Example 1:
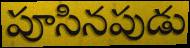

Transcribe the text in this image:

పూసినపుడు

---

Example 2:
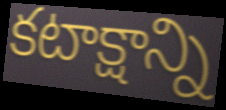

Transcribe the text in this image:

కటాక్షాన్ని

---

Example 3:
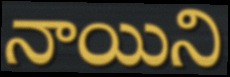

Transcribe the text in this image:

నాయిని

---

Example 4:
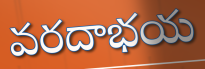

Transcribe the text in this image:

వరదాభయ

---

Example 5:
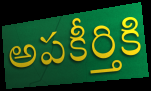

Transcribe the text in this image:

అపకీర్తికి